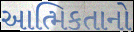
આત્મિકતાનો